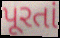
પૂરતાં